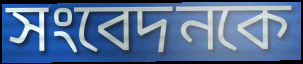
সংবেদনকে